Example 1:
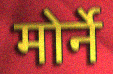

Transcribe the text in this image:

मोर्ने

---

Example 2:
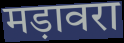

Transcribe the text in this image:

मड़ावरा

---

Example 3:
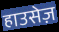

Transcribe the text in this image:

हाउसेज़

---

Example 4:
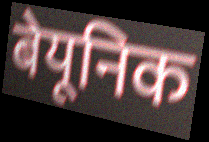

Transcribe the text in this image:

बेयूनिक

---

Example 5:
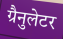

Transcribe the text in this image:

ग्रैनुलेटर